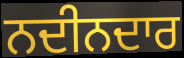
ਨਦੀਨਦਾਰ